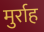
मुर्राह